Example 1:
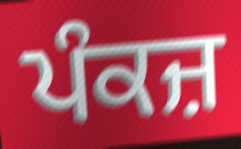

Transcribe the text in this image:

ਪੰਕਜ਼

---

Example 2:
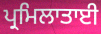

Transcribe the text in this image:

ਪ੍ਰਮਿਲਾਤਾਈ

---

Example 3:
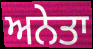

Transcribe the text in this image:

ਅਨੇਤਾ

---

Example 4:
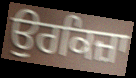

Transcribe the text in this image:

ਉਰਕਿਜ਼ਾ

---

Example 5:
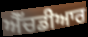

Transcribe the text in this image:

ਐੱਚਡੀਆਰ